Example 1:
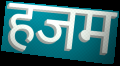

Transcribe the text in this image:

हजम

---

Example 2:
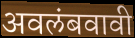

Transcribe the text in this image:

अवलंबवावी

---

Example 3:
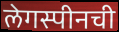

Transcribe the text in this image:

लेगस्पीनची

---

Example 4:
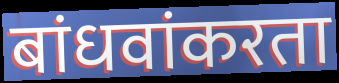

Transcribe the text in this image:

बांधवांकरता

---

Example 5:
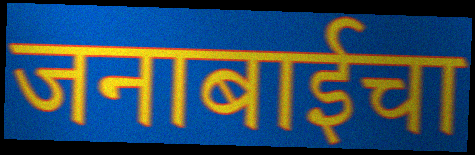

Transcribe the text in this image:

जनाबाईचा